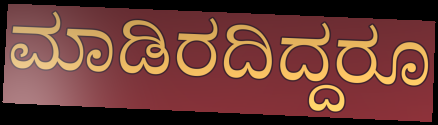
ಮಾಡಿರದಿದ್ದರೂ